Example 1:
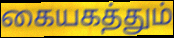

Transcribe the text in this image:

கையகத்தும்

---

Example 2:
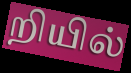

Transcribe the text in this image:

றியில்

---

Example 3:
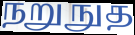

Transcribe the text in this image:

நறுநுத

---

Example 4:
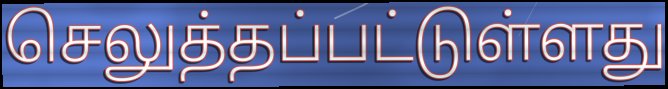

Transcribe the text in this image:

செலுத்தப்பட்டுள்ளது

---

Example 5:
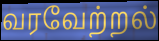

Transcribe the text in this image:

வரவேற்றல்